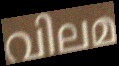
വിലമ